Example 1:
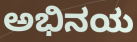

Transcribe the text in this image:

ಅಭಿನಯ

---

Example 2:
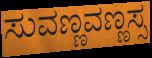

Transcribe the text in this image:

ಸುವಣ್ಣವಣ್ಣಸ್ಸ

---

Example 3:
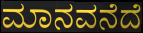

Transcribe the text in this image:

ಮಾನವನೆದೆ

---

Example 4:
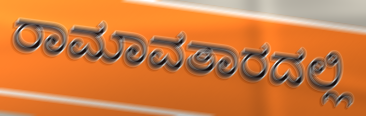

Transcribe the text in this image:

ರಾಮಾವತಾರದಲ್ಲಿ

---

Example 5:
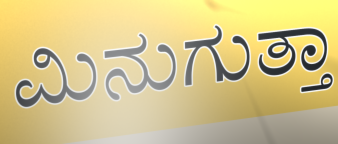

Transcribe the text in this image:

ಮಿನುಗುತ್ತಾ